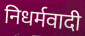
निधर्मवादी